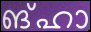
ങ്ഹാ